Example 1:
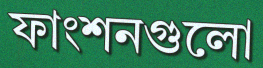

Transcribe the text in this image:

ফাংশনগুলো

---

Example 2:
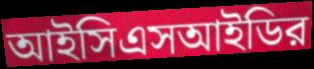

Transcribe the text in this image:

আইসিএসআইডির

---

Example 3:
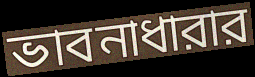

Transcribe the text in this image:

ভাবনাধারার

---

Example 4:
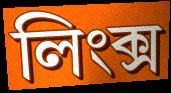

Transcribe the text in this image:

লিংক্স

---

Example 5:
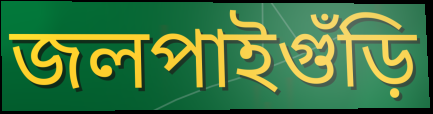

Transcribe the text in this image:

জলপাইগুঁড়ি